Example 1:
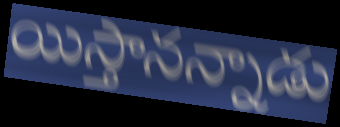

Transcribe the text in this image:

యిస్తానన్నాడు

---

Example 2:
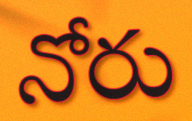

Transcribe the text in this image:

నోరు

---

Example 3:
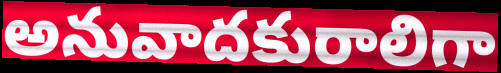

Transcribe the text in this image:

అనువాదకురాలిగా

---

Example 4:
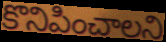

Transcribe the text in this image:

కొనిపించాలని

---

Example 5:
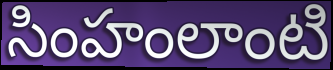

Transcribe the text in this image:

సింహంలాంటి